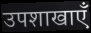
उपशाखाएँ